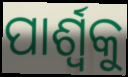
ପାର୍ଶ୍ଵକୁ